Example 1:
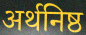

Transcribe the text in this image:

अर्थनिष्ठ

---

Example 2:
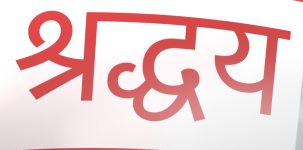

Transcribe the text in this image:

श्रद्धय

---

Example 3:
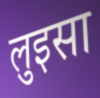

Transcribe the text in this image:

लुइसा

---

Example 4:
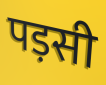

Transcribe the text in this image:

पड़सी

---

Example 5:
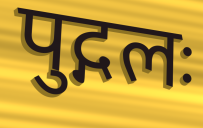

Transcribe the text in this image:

पुद्गलः